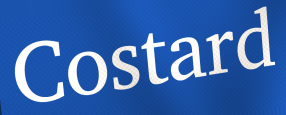
Costard